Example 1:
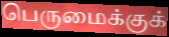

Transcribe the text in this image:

பெருமைக்குக்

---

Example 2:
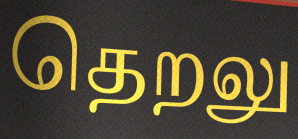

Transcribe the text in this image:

தெறலு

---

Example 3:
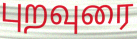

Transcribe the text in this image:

புறவுரை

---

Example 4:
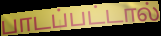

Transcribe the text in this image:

பாடப்பட்டால்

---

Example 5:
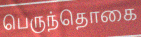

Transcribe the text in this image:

பெருந்தொகை